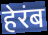
हेरंब